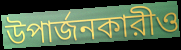
উপার্জনকারীও